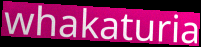
whakaturia